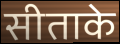
सीताके